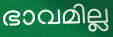
ഭാവമില്ല